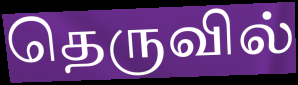
தெருவில்